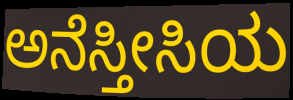
ಅನೆಸ್ತೀಸಿಯ